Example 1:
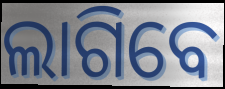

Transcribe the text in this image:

ଲାଗିବେ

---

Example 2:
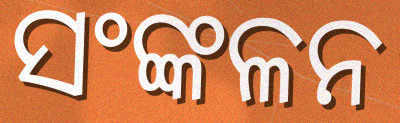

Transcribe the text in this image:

ସଂଙ୍କଳନ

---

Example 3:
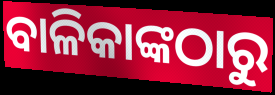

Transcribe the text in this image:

ବାଳିକାଙ୍କଠାରୁ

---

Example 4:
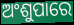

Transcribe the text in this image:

ଅଂଶୁପାରେ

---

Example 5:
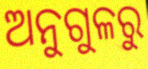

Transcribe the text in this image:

ଅନୁଗୁଳରୁ